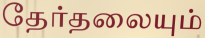
தேர்தலையும்